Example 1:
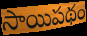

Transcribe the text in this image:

సాయిపథం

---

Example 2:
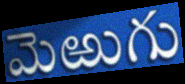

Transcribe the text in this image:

మెఱుగు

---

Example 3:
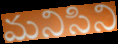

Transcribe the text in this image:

మనిసిని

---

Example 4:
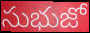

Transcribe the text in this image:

సుభుజో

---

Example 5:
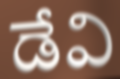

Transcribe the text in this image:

డేవి